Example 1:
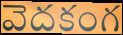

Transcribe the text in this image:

వెదకంగ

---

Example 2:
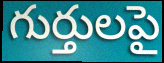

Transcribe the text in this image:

గుర్తులపై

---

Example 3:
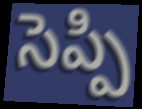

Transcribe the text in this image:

సెప్పి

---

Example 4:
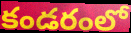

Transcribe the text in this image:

కండరంలో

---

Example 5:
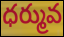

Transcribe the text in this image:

ధర్మువ